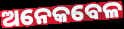
ଅନେକବେଳ